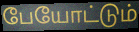
பேயோட்டும்